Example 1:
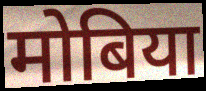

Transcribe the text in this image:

मोबिया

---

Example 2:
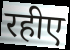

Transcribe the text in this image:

रहीए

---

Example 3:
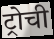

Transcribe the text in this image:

ट्रोची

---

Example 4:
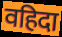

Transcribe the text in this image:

वहिदा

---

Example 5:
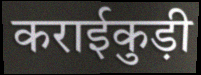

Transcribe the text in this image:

कराईकुड़ी